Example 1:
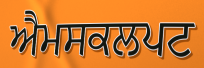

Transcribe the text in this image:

ਐਮਸਕਲਪਟ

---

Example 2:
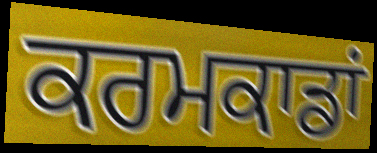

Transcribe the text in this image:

ਕਰਮਕਾਡਾਂ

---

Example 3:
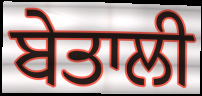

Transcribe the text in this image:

ਬੇਤਾਲੀ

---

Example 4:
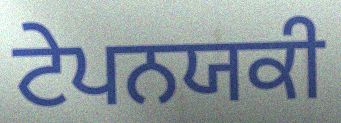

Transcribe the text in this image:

ਟੇਪਨਯਕੀ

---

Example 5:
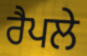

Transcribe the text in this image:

ਰੈਪਲੇ